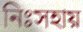
নিঃসহায়